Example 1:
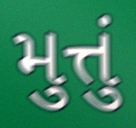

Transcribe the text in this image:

મુત્તું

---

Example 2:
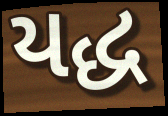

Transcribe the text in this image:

યદ્ધ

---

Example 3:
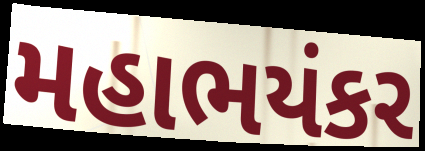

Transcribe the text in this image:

મહાભયંકર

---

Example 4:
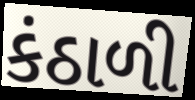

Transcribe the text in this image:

કંઠાળી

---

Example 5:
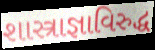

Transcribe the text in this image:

શાસ્ત્રાજ્ઞાવિરુદ્ધ